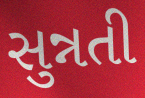
સુન્નતી